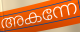
അകന്നേ